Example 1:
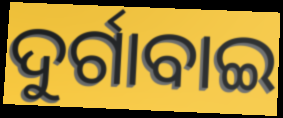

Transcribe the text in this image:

ଦୁର୍ଗାବାଇ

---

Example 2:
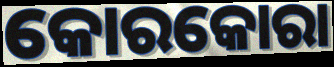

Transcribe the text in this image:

କୋରକୋରା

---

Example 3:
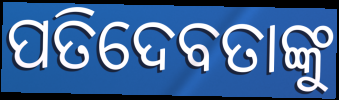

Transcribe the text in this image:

ପତିଦେବତାଙ୍କୁ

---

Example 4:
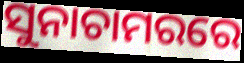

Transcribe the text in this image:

ସୁନାଚାମରରେ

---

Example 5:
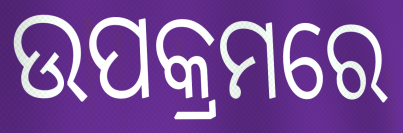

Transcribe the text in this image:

ଉପକ୍ରମରେ